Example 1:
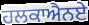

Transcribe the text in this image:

ਹਲਕਾਐਨਏ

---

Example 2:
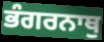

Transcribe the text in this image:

ਭੰਗਰਨਾਥੁ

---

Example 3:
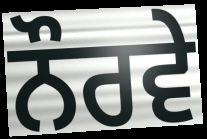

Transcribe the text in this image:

ਨੌਰਵੇ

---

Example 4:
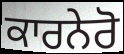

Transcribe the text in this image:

ਕਾਰਨੇਰੋ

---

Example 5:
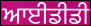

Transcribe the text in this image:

ਆਈਡੀਡੀ